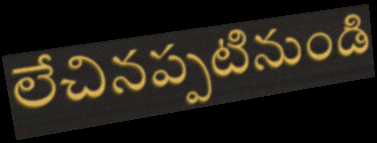
లేచినప్పటినుండి